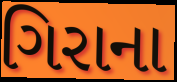
ગિરાના